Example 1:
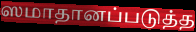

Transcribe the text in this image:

ஸமாதானப்படுத்த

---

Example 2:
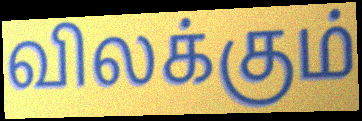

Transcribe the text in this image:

விலக்கும்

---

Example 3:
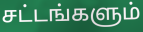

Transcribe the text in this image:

சட்டங்களும்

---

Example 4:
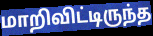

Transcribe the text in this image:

மாறிவிட்டிருந்த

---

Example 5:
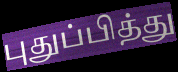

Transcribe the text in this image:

புதுப்பித்து